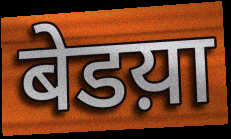
बेडय़ा